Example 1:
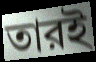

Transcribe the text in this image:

তারই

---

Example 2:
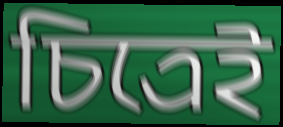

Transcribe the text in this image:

চিত্রেই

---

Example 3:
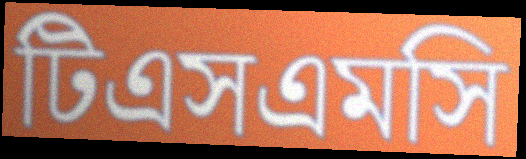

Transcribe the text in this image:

টিএসএমসি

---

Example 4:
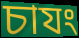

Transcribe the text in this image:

চাযং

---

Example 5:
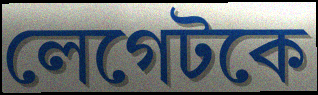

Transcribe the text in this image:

লেগেটকে